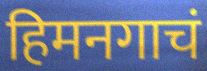
हिमनगाचं